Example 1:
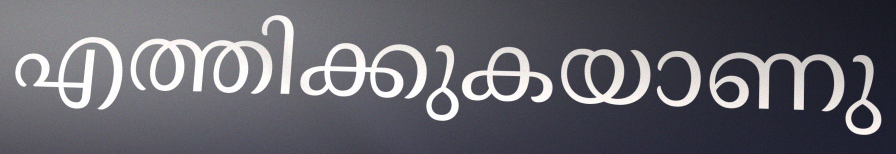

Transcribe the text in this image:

എത്തിക്കുകയാണു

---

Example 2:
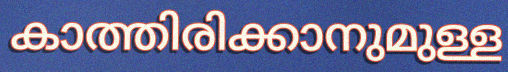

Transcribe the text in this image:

കാത്തിരിക്കാനുമുള്ള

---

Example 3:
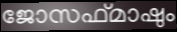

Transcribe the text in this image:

ജോസഫ്മാഷും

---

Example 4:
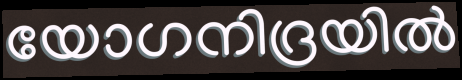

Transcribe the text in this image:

യോഗനിദ്രയിൽ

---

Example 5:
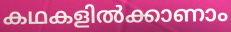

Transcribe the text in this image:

കഥകളിൽക്കാണാം